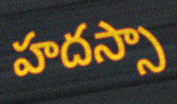
హదస్సా